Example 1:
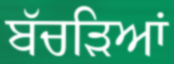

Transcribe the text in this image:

ਬੱਚੜਿਆਂ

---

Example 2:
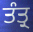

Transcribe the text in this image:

ਤੰਤ੍ਰ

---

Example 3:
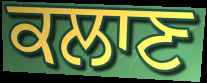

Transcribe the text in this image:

ਕਲਾਣ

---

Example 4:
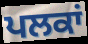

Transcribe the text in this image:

ਪਲਕਾਂ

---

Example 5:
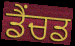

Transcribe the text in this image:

ਡੈਂਚਡ